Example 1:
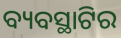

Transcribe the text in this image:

ବ୍ୟବସ୍ଥାଟିର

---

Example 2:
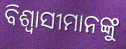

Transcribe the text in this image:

ବିଶ୍ୱାସୀମାନଙ୍କୁ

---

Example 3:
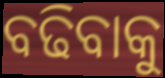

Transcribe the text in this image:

ବଢିବାକୁ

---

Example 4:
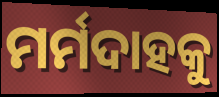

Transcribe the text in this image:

ମର୍ମଦାହକୁ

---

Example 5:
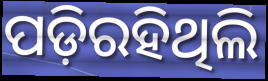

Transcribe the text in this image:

ପଡ଼ିରହିଥିଲି